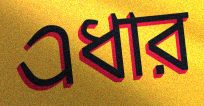
এধার